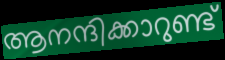
ആനന്ദിക്കാറുണ്ട്